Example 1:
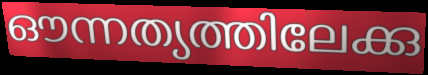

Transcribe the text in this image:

ഔന്നത്യത്തിലേക്കു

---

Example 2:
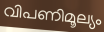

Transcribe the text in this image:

വിപണിമൂല്യം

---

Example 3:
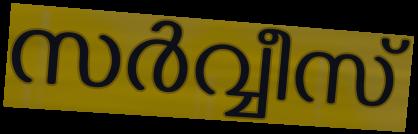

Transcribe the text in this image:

സർവ്വീസ്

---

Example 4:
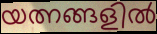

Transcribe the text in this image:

യത്നങ്ങളിൽ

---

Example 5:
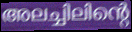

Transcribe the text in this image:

അലച്ചിലിന്റെ